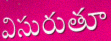
విసురుతూ